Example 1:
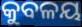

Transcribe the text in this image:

କୁବଳୟ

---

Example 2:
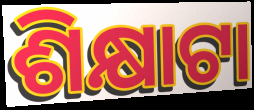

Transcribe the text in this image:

ଶିକ୍ଷାଟା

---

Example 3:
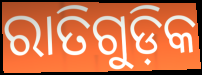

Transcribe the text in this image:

ରାତିଗୁଡ଼ିକ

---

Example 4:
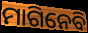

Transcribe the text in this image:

ମାଗିନେବି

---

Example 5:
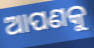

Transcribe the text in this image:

ଆପଣକୁ